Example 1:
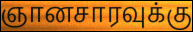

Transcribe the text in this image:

ஞானசாரவுக்கு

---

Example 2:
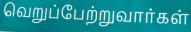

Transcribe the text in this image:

வெறுப்பேற்றுவார்கள்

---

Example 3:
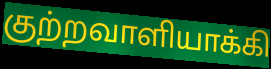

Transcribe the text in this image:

குற்றவாளியாக்கி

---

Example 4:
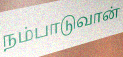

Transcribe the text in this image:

நம்பாடுவான்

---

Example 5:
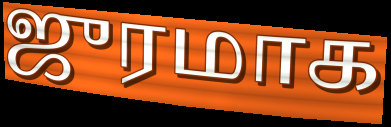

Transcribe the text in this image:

ஜுரமாக